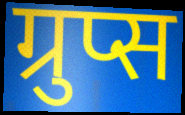
ग्रुप्स